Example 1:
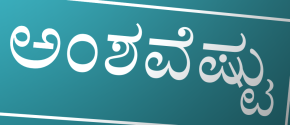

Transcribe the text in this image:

ಅಂಶವೆಷ್ಟು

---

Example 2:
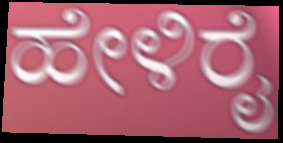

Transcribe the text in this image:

ಹೇಳಿರೈ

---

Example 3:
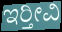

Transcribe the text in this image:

ಇರ‍್ತೀವಿ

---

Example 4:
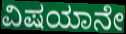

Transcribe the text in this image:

ವಿಷಯಾನೇ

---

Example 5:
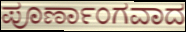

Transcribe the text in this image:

ಪೂರ್ಣಾಂಗವಾದ